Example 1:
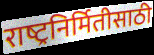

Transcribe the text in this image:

राष्ट्रनिर्मितीसाठी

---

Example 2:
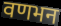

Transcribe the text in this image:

वणभन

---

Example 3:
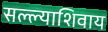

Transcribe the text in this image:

सल्ल्याशिवाय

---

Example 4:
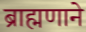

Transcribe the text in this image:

ब्राह्मणाने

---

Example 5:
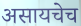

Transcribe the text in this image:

असायचेच